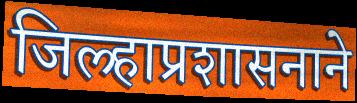
जिल्हाप्रशासनाने